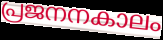
പ്രജനനകാലം